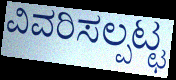
ವಿವರಿಸಲ್ಪಟ್ಟ